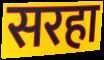
सरहा